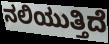
ನಲಿಯುತ್ತಿದೆ